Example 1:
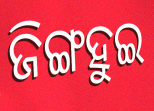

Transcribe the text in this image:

ଜିଙ୍ଗହୁଇ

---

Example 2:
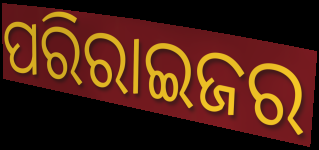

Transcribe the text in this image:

ପରିରାଇଜର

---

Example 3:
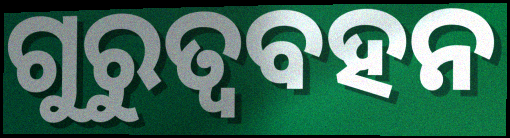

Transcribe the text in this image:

ଗୁରୁତ୍ୱବହନ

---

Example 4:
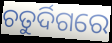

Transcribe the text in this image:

ଚତୁର୍ଦିଗରେ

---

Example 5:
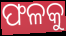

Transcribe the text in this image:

ଫଳକୁ